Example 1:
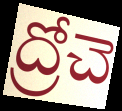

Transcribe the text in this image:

ద్రోచె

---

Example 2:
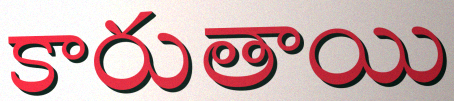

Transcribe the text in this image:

కారుతాయి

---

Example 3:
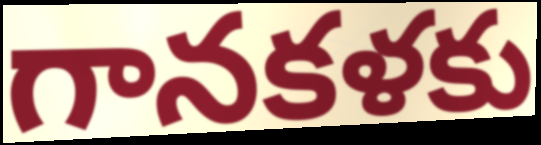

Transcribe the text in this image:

గానకళకు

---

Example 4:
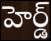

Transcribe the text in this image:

హెర్డ్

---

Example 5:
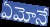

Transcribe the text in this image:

ఏమోనే